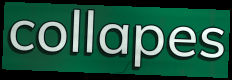
collapes